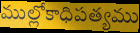
ముల్లోకాధిపత్యము